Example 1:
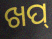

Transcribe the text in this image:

ଖପ୍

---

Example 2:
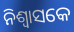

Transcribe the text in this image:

ନିଶ୍ଵାସକେ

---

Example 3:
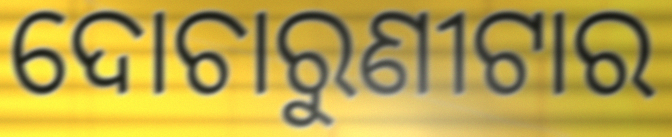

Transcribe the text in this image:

ଦୋଚାରୁଣୀଟାର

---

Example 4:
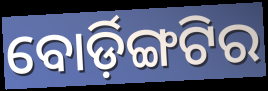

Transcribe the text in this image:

ବୋର୍ଡ଼ିଙ୍ଗଟିର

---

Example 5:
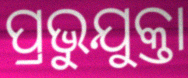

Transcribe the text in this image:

ପ୍ରଭୁଯୁକ୍ତା